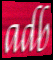
adb